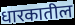
धारकातील